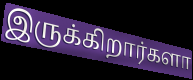
இருக்கிறார்களா